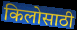
किलोसाठी